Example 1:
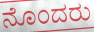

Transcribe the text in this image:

ನೊಂದರು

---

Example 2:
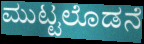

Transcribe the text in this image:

ಮುಟ್ಟಲೊಡನೆ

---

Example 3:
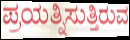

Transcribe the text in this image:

ಪ್ರಯತ್ನಿಸುತ್ತಿರುವ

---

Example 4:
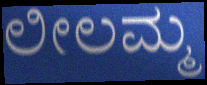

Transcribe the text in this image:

ಲೀಲಮ್ಮ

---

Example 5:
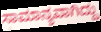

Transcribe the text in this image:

ಸಾಮಾನ್ಯವಾಗಿದ್ದು